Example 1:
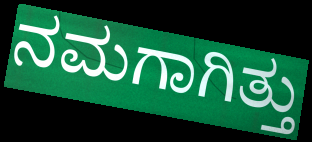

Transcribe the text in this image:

ನಮಗಾಗಿತ್ತು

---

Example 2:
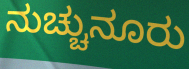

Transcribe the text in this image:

ನುಚ್ಚುನೂರು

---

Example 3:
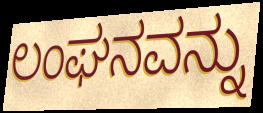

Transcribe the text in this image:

ಲಂಘನವನ್ನು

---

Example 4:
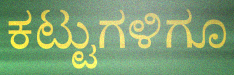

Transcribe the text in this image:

ಕಟ್ಟುಗಳಿಗೂ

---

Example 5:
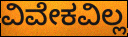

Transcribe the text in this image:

ವಿವೇಕವಿಲ್ಲ